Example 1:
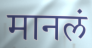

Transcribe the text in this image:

मानलं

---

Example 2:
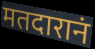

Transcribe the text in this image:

मतदारानं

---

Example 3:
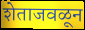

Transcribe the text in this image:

शेताजवळून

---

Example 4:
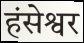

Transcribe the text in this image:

हंसेश्वर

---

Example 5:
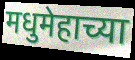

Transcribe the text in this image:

मधुमेहाच्या